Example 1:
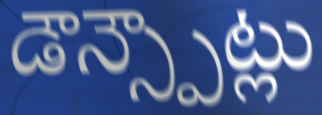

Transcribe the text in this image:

డౌన్స్పౌట్లు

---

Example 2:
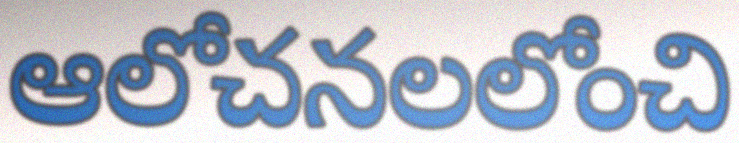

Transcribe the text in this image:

ఆలోచనలలోంచి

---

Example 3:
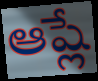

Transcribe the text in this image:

ఆష్లే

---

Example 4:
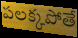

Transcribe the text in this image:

పలక్కపోతే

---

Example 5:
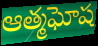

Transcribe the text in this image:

ఆత్మఘోష